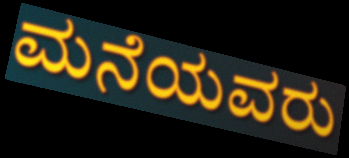
ಮನೆಯವರು